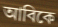
আবিকে